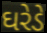
ઘરેડે